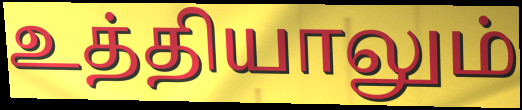
உத்தியாலும்